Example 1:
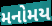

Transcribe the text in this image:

મનોમય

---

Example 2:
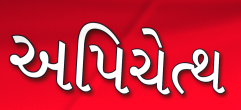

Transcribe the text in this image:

અપિચેત્થ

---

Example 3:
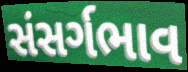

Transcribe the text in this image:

સંસર્ગભાવ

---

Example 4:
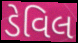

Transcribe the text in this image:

ડેવિલ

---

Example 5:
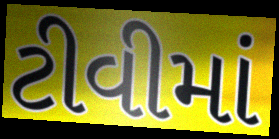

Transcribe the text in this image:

ટીવીમાં